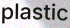
plastic